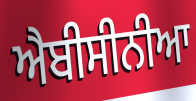
ਐਬੀਸੀਨੀਆ